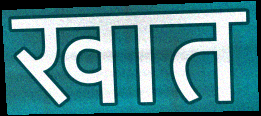
खात